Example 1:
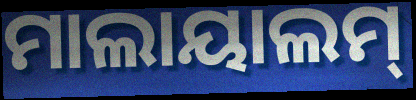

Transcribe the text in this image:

ମାଲାୟାଲମ୍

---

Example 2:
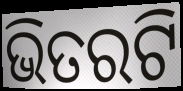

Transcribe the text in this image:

ଭିତରଟି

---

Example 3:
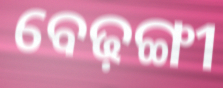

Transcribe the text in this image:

ବେଢ଼ଙ୍ଗୀ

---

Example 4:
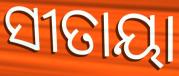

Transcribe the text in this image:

ସୀତାୟା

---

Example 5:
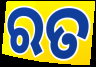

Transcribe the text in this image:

ରତ